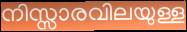
നിസ്സാരവിലയുള്ള